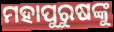
ମହାପୁରୁଷଙ୍କୁ